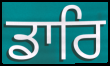
ਡਾਰਿ